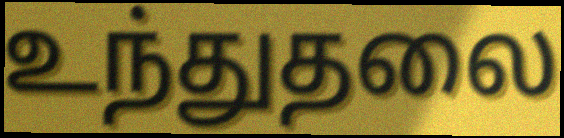
உந்துதலை